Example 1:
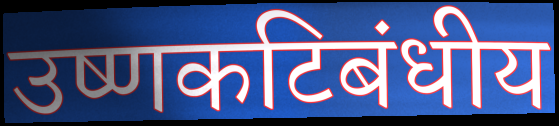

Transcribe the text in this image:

उष्णकटिबंधीय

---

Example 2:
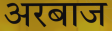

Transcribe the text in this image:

अरबाज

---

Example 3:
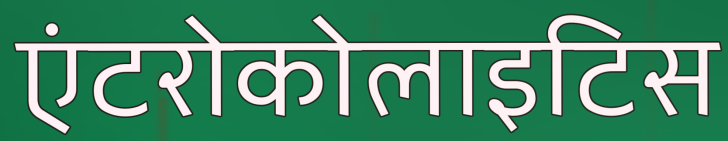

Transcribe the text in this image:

एंटरोकोलाइटिस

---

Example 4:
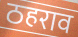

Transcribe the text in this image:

ठहराव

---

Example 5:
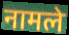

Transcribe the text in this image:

नामले